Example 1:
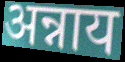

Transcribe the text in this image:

अन्नाय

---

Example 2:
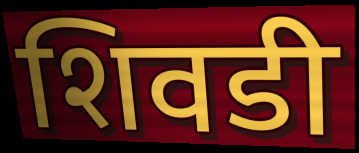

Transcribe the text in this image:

शिवडी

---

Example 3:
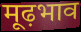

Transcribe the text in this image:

मूढ़भाव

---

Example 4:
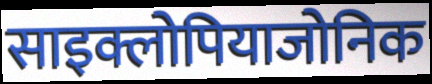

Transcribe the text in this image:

साइक्लोपियाजोनिक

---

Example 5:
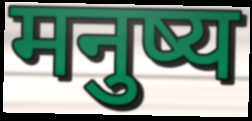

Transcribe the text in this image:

मनुष्य